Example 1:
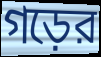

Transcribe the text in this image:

গড়ের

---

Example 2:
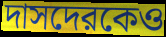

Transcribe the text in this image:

দাসদেরকেও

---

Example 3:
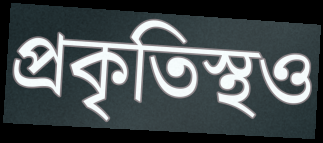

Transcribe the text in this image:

প্রকৃতিস্থও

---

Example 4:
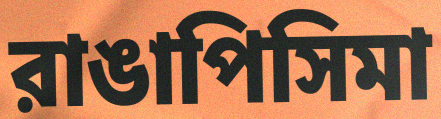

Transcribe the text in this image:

রাঙাপিসিমা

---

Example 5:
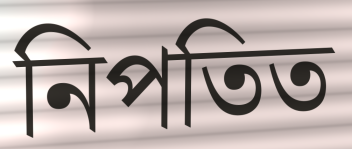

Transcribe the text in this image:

নিপতিত